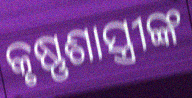
କୃଷ୍ଣଶାସ୍ତ୍ରୀଙ୍କ